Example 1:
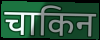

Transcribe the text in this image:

चाकिन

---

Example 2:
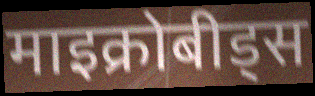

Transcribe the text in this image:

माइक्रोबीड्स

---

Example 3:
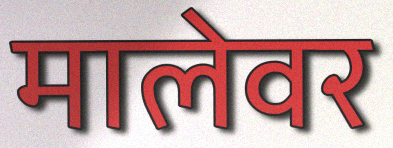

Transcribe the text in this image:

मालेवर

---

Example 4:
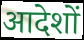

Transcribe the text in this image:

आदेशों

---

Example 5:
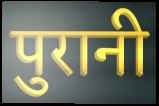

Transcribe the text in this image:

पुरानी